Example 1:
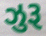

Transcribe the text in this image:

ઝુરૂ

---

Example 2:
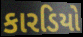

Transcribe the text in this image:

કારડિયો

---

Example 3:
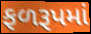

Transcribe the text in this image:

ફળરૂપમાં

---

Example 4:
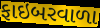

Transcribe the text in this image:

ફાઇબરવાળા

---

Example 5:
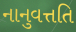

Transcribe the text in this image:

નાનુવત્તતિ